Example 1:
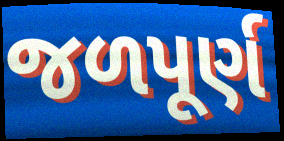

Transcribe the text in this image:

જળપૂર્ણ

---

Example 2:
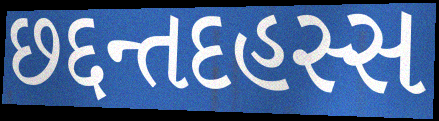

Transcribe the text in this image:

છદ્દન્તદહસ્સ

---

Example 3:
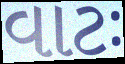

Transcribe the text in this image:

વાટઃ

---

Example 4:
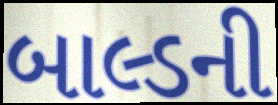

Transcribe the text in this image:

બાલ્ડની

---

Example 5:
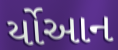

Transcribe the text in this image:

ર્યોઆન